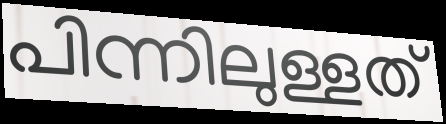
പിന്നിലുള്ളത്